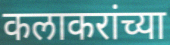
कलाकरांच्या